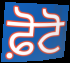
ਫ਼ੋਟੋ